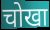
चोखा